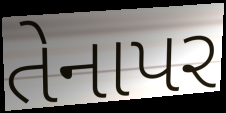
તેનાપર